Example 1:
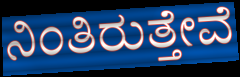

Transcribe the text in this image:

ನಿಂತಿರುತ್ತೇವೆ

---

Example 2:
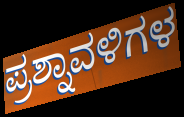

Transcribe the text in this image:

ಪ್ರಶ್ನಾವಳಿಗಳ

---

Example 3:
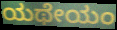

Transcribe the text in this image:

ಯಥೇಯಂ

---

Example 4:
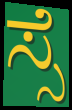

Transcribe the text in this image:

ಸ್ಸೆ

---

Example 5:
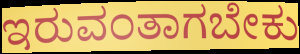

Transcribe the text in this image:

ಇರುವಂತಾಗಬೇಕು